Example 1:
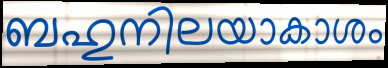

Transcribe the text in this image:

ബഹുനിലയാകാശം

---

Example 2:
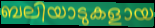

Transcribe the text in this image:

ബലിയാടുകളായ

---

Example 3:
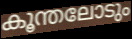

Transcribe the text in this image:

കൂന്തലോടും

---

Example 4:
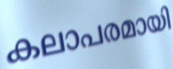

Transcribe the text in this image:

കലാപരമായി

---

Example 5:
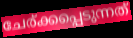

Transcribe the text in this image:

ചേര്ക്കപ്പെടുന്നത്